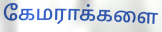
கேமராக்களை